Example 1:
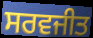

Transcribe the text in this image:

ਸਰਵਜੀਤ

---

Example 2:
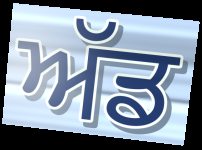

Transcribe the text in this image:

ਅੱਡ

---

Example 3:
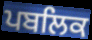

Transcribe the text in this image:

ਪਬਲਿਕ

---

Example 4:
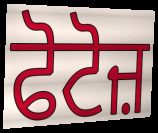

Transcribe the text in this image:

ਫੋਟੋਜ਼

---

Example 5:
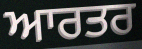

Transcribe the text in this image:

ਆਰਤਰ